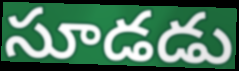
సూడడు